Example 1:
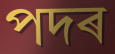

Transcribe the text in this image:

পদৰ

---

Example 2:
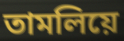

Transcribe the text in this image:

তামলিয়ে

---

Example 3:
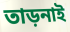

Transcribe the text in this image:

তাড়নাই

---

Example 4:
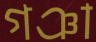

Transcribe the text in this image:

গঞা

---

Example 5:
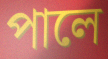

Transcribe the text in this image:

পালে